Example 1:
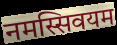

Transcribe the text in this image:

नमस्सिवयम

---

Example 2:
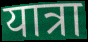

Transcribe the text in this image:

यात्रा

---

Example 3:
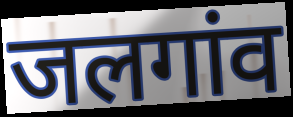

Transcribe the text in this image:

जलगांव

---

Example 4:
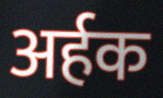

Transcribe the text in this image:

अर्हक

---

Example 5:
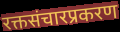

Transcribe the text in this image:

रक्तसंचारप्रकरण